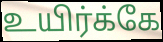
உயிர்க்கே